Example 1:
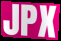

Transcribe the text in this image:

JPX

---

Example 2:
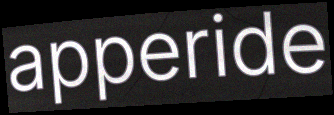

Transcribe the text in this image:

apperide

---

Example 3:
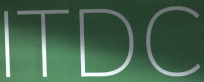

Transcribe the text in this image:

ITDC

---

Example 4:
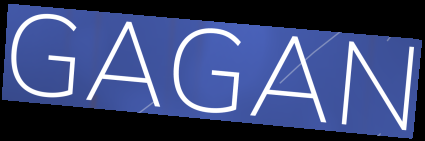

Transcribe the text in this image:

GAGAN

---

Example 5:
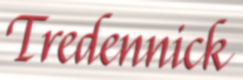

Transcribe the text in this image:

Tredennick